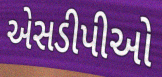
એસડીપીઓ